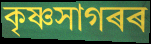
কৃষ্ণসাগৰৰ